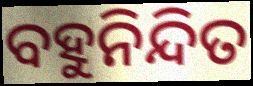
ବହୁନିନ୍ଦିତ